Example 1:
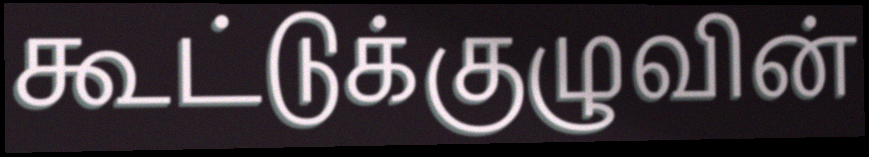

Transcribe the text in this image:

கூட்டுக்குழுவின்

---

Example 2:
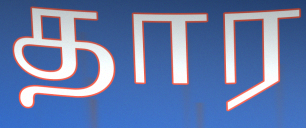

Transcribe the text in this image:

தார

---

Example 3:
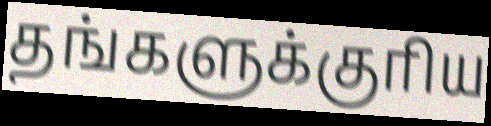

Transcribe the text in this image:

தங்களுக்குரிய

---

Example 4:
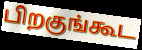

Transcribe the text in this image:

பிறகுங்கூட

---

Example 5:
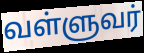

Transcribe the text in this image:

வள்ளுவர்